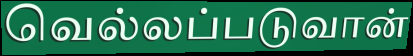
வெல்லப்படுவான்